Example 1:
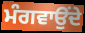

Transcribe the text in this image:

ਮੰਗਵਾਉਂਦੇ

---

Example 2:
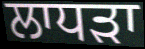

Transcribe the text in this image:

ਲਾਧੜਾ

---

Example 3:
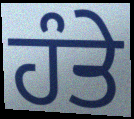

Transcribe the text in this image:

ਹੰਤੇ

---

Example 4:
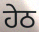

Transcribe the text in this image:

ਹੇਠ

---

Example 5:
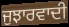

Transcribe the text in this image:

ਜੁਝਾਰਵਾਦੀ